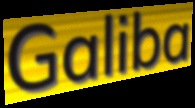
Galiba